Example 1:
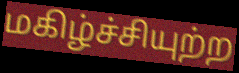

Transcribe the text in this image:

மகிழ்ச்சியுற்ற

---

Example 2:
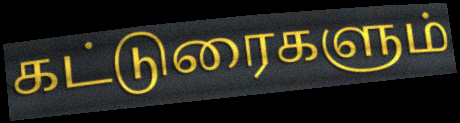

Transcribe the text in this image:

கட்டுரைகளும்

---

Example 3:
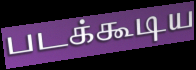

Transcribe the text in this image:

படக்கூடிய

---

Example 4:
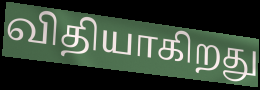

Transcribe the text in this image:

விதியாகிறது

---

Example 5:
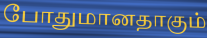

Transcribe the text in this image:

போதுமானதாகும்